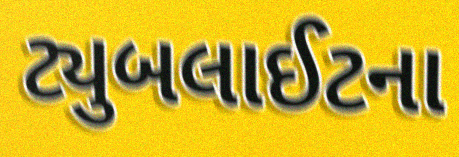
ટ્યુબલાઈટના